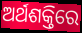
ଅର୍ଥଶକ୍ତିରେ